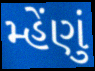
મ્હેંણું